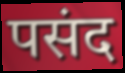
पसंद